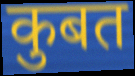
कुबत